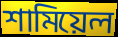
শামিয়েল